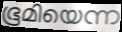
ഭൂമിയെന്ന